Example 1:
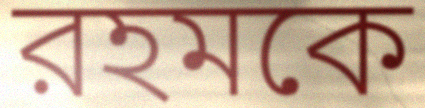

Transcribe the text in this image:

রহমকে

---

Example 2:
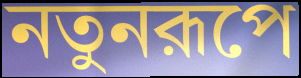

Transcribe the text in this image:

নতুনরূপে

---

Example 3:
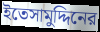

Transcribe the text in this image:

ইতেসামুদ্দিনের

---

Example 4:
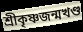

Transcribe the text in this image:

শ্রীকৃষ্ণজন্মখণ্ড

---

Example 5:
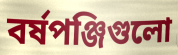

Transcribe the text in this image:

বর্ষপঞ্জিগুলো